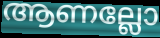
ആണല്ലോ